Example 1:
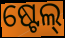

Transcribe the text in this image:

ଷ୍ଟେଲ୍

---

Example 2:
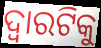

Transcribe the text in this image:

ଦ୍ଵାରଟିକୁ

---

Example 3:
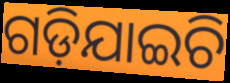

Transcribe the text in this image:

ଗଡ଼ିଯାଇଚି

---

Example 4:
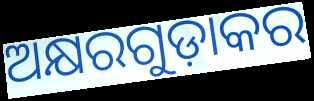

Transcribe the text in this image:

ଅକ୍ଷରଗୁଡ଼ାକର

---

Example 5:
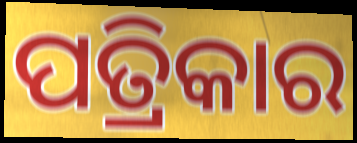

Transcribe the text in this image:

ପତ୍ରିକାର